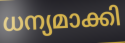
ധന്യമാക്കി